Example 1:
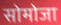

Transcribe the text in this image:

सोमोजा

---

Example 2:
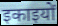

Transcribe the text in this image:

इकाइयों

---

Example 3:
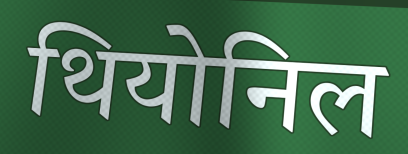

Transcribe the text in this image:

थियोनिल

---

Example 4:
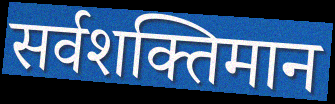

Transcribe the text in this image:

सर्वशक्तिमान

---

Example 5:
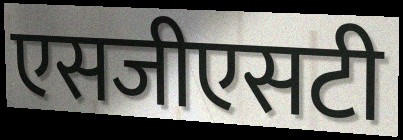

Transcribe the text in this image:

एसजीएसटी